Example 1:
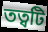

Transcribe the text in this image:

তত্বটি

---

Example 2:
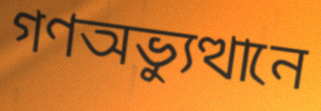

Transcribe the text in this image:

গণঅভ্যুত্থানে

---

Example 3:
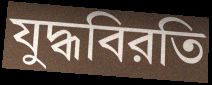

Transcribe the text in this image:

যুদ্ধবিরতি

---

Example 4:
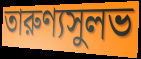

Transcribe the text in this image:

তারুণ্যসুলভ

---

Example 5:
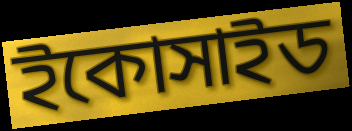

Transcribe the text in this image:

ইকোসাইড